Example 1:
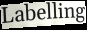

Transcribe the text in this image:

Labelling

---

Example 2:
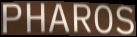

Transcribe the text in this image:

PHAROS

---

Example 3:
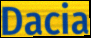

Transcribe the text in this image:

Dacia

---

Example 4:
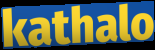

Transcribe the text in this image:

kathalo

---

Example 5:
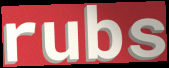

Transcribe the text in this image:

rubs